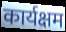
कार्यक्षम